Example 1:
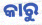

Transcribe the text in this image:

କାରୁ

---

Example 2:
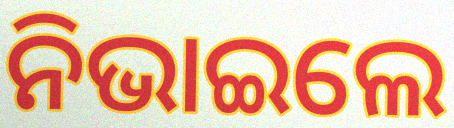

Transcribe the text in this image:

ନିଭାଇଲେ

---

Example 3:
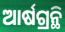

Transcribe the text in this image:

ଆର୍ଷଗ୍ରନ୍ଥି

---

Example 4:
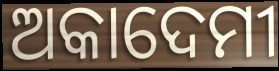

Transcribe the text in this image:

ଅକାଦେମୀ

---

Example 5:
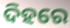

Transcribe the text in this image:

ଦିହରେ